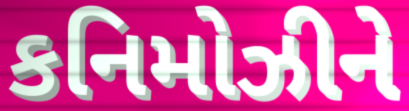
કનિમોઝીને